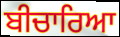
ਬੀਚਾਰਿਆ